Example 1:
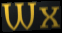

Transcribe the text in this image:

Wx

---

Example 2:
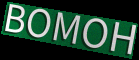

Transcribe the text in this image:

BOMOH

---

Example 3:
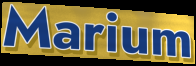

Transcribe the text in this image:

Marium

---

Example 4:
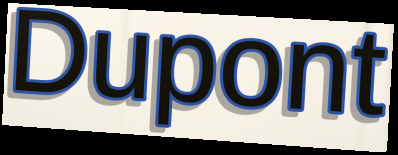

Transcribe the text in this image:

Dupont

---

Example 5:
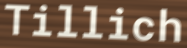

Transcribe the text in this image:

Tillich